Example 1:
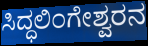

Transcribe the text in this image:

ಸಿದ್ಧಲಿಂಗೇಶ್ವರನ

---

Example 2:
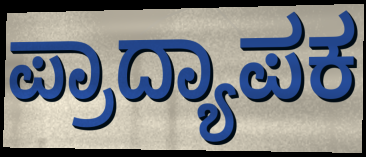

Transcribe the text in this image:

ಪ್ರಾದ್ಯಾಪಕ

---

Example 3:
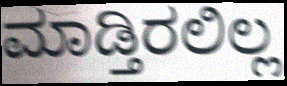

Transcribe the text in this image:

ಮಾಡ್ತಿರಲಿಲ್ಲ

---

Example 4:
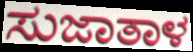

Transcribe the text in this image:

ಸುಜಾತಾಳ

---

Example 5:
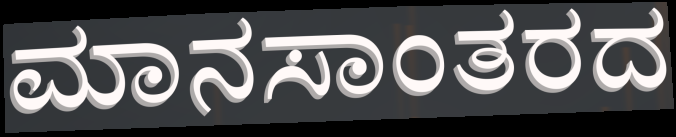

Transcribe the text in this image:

ಮಾನಸಾಂತರದ